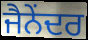
ਜੈਨੇਂਦਰ